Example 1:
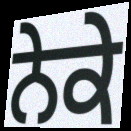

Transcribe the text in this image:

ਨੇਕੇ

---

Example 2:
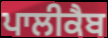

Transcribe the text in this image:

ਪਾਲੀਕੈਬ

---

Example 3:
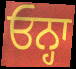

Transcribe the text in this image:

ਓਨ੍ਹਾ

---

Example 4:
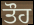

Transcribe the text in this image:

ਤੌਹ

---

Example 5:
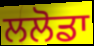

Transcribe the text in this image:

ਲਲੋਡਾ